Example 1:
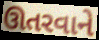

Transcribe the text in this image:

ઊતરવાને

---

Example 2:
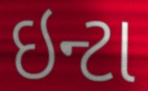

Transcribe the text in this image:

ઇન્ટા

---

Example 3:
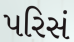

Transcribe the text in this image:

પરિસં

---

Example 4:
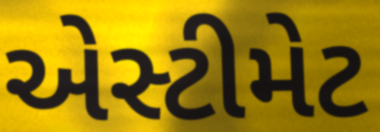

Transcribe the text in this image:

એસ્ટીમેટ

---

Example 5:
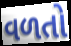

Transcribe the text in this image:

વળતો